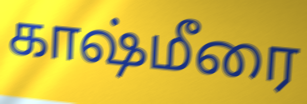
காஷ்மீரை